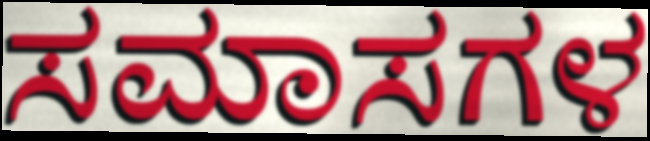
ಸಮಾಸಗಳ